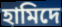
হামিদে